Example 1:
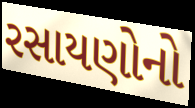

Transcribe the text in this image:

રસાયણોનો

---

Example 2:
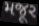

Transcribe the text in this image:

મજૂર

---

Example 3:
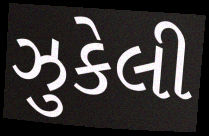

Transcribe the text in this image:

ઝુકેલી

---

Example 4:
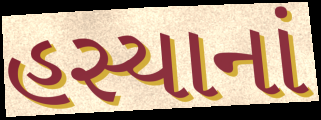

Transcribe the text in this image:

હસ્યાનાં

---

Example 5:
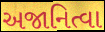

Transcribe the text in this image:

અજાનિત્વા